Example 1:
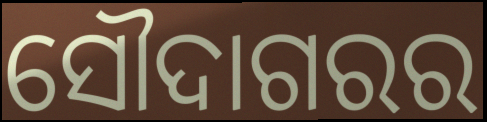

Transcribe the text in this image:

ସୌଦାଗରର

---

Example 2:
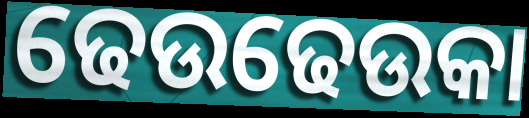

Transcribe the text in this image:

ଢେଉଢେଉକା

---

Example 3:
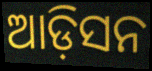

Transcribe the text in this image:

ଆଡ଼ିସନ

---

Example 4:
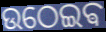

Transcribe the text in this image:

ଉଠେଇଵ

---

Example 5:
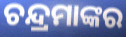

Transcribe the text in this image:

ଚନ୍ଦ୍ରମାଙ୍କର